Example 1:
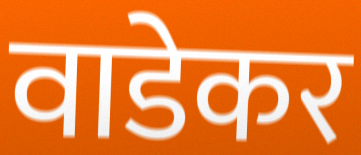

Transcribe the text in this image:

वाडेकर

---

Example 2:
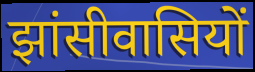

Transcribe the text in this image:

झांसीवासियों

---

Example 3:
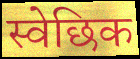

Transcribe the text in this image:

स्वेछिक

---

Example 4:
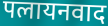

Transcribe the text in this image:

पलायनवाद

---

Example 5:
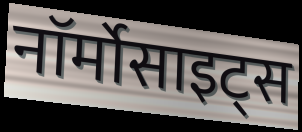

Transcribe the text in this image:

नॉर्मोसाइट्स